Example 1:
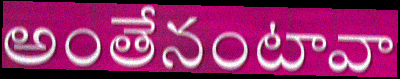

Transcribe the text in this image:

అంతేనంటావా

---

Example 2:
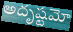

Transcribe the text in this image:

అదృష్టమో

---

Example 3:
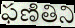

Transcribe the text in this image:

ఫణితిని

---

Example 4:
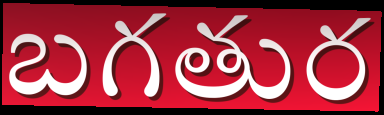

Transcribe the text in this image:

బగతుర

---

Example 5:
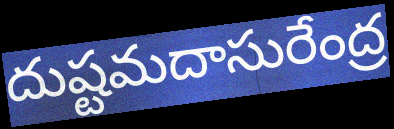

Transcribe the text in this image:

దుష్టమదాసురేంద్ర